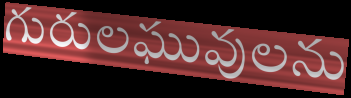
గురులఘువులను